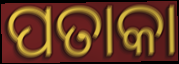
ପତାକା